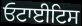
ਓਟਾਈਟਿਸ